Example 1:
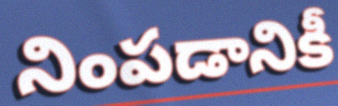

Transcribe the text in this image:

నింపడానికీ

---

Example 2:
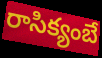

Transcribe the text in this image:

రాసిక్యంబే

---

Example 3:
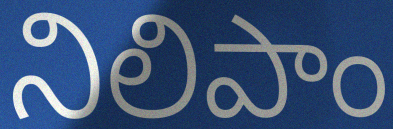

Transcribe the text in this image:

నిలిపాం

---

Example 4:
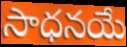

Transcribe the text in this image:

సాధనయే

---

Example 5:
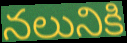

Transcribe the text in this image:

నలునికి